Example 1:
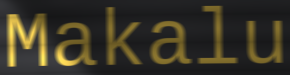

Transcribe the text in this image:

Makalu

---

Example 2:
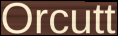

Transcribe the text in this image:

Orcutt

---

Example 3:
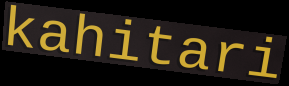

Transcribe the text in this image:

kahitari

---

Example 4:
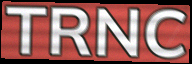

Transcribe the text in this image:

TRNC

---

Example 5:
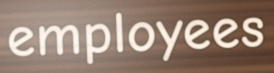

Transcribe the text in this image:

employees